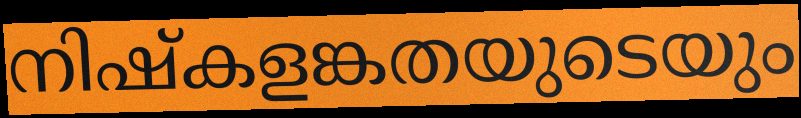
നിഷ്കളങ്കതയുടെയും